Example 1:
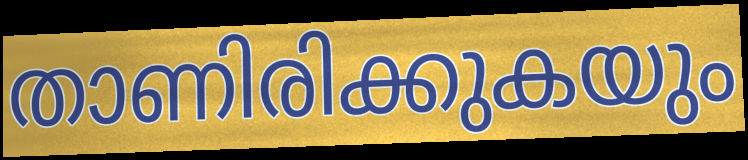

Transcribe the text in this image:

താണിരിക്കുകയും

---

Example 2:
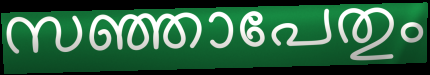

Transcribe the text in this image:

സഞ്ഞാപേതും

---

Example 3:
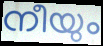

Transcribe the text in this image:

നീയും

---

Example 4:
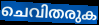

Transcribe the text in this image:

ചെവിതരുക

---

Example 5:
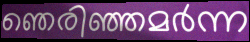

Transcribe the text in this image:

ഞെരിഞ്ഞമർന്ന